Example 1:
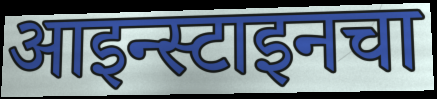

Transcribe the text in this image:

आइन्स्टाइनचा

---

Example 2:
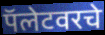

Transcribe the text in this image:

पॅलेटवरचे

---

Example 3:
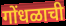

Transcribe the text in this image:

गोंधळाची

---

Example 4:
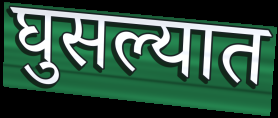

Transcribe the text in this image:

घुसल्यात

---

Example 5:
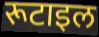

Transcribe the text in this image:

रूटाइल